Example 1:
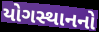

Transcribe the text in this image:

યોગસ્થાનનો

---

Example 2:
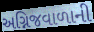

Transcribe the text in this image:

અગ્નિજવાળાની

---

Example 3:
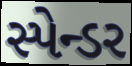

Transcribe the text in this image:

સ્પેન્ડર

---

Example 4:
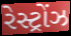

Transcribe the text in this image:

રેસ્ટ્રોંઝ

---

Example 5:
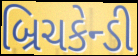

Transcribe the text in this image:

બ્રિચકેન્ડી